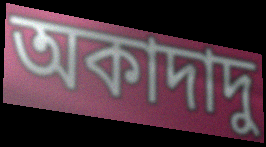
অকাদাদু